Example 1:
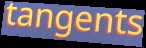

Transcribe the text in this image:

tangents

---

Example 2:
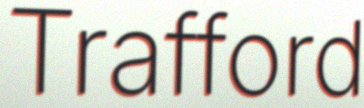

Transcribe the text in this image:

Trafford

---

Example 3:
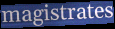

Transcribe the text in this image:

magistrates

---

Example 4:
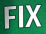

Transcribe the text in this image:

FIX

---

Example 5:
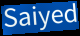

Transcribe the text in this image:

Saiyed